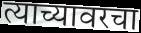
त्याच्यावरचा